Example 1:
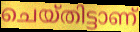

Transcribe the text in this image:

ചെയ്തിട്ടാണ്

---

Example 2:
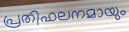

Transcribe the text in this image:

പ്രതിഫലനമായും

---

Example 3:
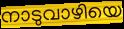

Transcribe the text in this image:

നാടുവാഴിയെ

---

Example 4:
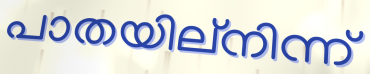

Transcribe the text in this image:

പാതയില്നിന്ന്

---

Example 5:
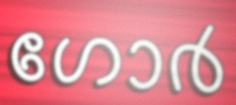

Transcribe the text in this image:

ഗോർ